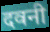
दवनी